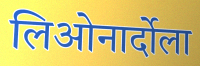
लिओनार्दोला